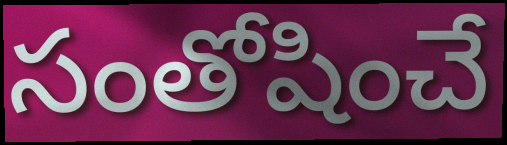
సంతోషించే